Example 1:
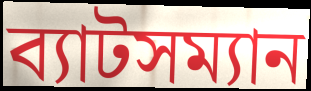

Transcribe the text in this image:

ব্যাটসম্যান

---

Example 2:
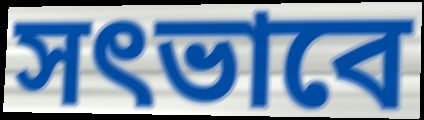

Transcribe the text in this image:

সৎভাবে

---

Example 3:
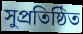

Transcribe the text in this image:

সুপ্রতিষ্ঠিত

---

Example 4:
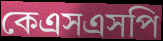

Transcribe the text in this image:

কেএসএসপি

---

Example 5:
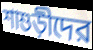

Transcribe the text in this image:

শাশুড়ীদের